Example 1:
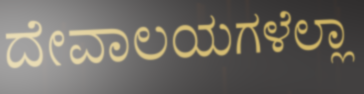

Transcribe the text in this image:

ದೇವಾಲಯಗಳೆಲ್ಲಾ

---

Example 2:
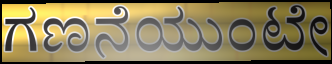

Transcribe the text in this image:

ಗಣನೆಯುಂಟೇ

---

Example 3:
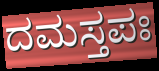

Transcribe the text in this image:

ದಮಸ್ತಪಃ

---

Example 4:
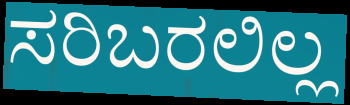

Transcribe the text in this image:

ಸರಿಬರಲಿಲ್ಲ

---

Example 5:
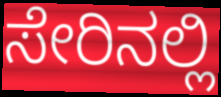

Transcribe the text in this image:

ಸೇರಿನಲ್ಲಿ